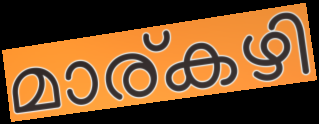
മാര്കഴി